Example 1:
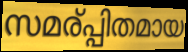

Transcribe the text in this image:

സമര്പ്പിതമായ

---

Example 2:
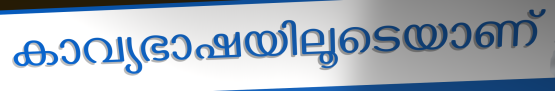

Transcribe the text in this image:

കാവ്യഭാഷയിലൂടെയാണ്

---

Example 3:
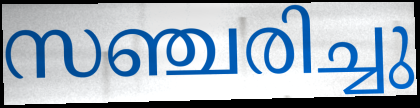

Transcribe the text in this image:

സഞ്ചരിച്ചു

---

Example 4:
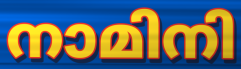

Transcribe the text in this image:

നാമിനി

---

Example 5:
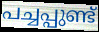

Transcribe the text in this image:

പച്ചപ്പുണ്ട്